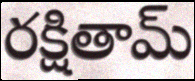
రక్షితామ్